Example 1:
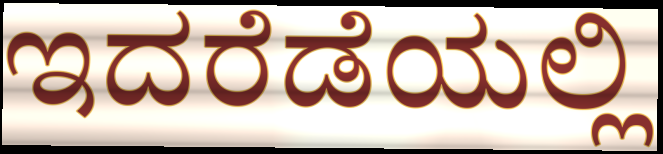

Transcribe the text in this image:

ಇದರೆಡೆಯಲ್ಲಿ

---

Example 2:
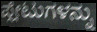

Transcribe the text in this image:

ಪ್ಲೇಟುಗಳನ್ನು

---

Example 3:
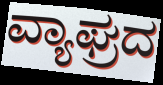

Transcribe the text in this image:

ವ್ಯಾಘ್ರದ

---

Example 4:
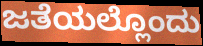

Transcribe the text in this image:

ಜತೆಯಲ್ಲೊಂದು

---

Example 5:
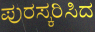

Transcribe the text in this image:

ಪುರಸ್ಕರಿಸಿದ